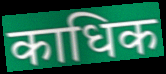
काधिक